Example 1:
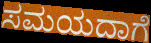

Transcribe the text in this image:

ಸಮಯದಾಗೆ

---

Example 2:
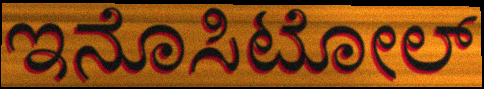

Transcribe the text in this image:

ಇನೊಸಿಟೋಲ್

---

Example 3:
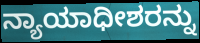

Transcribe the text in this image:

ನ್ಯಾಯಾಧೀಶರನ್ನು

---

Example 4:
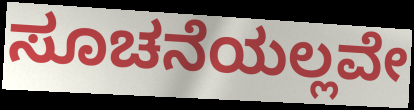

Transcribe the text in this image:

ಸೂಚನೆಯಲ್ಲವೇ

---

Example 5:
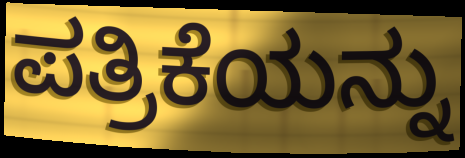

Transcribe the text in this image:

ಪತ್ರಿಕೆಯನ್ನು